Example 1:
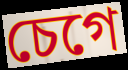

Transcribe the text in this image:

চেগে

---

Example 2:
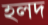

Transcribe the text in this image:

হলদ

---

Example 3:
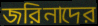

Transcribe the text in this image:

জরিনাদের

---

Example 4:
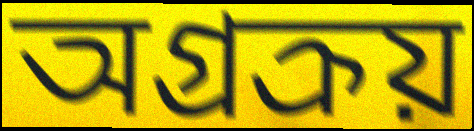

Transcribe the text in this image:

অগ্রক্রয়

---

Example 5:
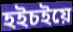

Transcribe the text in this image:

হইচইয়ে